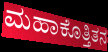
ಮಹಾಕೊತ್ತಿತನ